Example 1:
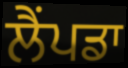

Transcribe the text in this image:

ਲੈਂਪਡਾ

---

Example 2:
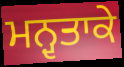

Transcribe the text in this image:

ਮਨ੍ਦਤਾਕੇ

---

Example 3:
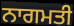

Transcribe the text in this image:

ਨਾਗਮਤੀ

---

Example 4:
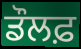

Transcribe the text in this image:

ਡੌਲਫ਼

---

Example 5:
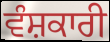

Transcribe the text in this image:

ਵੰਸ਼ਕਾਰੀ